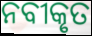
ନବୀକୃତ